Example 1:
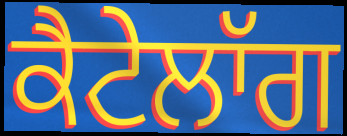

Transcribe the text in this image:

ਕੈਟੇਲਾੱਗ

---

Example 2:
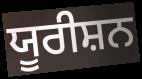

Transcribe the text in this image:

ਯੂਰੀਸ਼ਨ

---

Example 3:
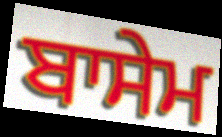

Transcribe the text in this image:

ਬਾਸੇਮ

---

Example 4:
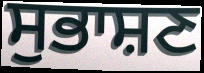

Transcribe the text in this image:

ਸੁਭਾਸ਼ਣ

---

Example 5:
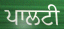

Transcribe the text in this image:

ਪਾਲਟੀ